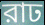
রাঢ